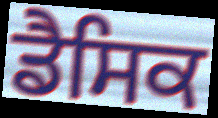
ਡੈਸਿਕ